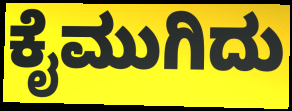
ಕೈಮುಗಿದು